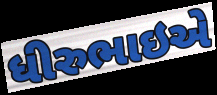
ધીરુભાઇએ